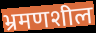
भ्रमणशील